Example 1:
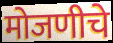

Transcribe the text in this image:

मोजणीचे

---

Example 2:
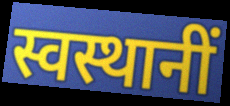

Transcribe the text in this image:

स्वस्थानीं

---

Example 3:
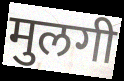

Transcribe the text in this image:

मुलगी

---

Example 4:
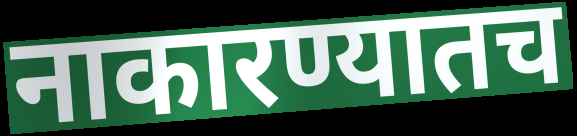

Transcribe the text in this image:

नाकारण्यातच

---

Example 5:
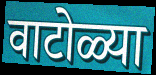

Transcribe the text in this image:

वाटोळ्या